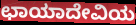
ಛಾಯಾದೇವಿಯ